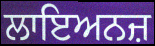
ਲਾਇਅਨਜ਼